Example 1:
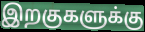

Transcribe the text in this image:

இறகுகளுக்கு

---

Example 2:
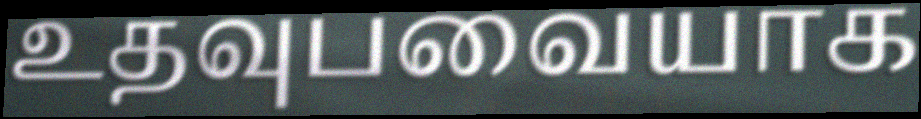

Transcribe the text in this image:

உதவுபவையாக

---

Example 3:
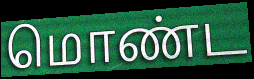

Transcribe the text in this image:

மொண்ட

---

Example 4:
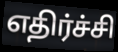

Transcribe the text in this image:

எதிர்ச்சி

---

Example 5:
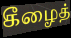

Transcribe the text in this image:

கீழைத்